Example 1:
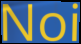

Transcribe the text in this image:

Noi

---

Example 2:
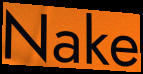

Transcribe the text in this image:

Nake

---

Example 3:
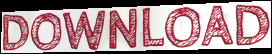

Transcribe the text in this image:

DOWNLOAD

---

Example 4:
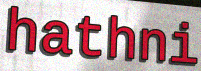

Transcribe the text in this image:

hathni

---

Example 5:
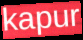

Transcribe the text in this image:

kapur